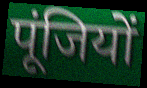
पूंजियों